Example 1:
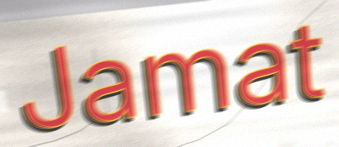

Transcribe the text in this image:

Jamat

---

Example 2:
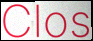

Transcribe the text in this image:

Clos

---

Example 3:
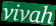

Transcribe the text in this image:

vivah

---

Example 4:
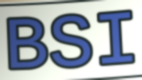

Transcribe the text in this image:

BSI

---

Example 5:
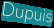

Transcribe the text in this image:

Dupuis